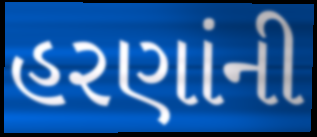
હરણાંની